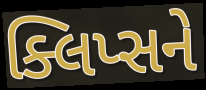
ક્લિપ્સને